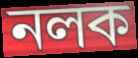
নলক